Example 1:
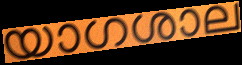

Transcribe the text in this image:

യാഗശാല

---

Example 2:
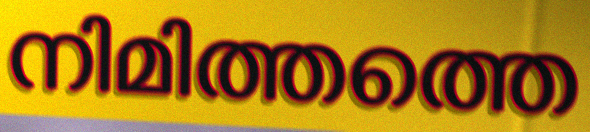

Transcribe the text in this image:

നിമിത്തത്തെ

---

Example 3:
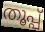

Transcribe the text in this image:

തൂപ്പ്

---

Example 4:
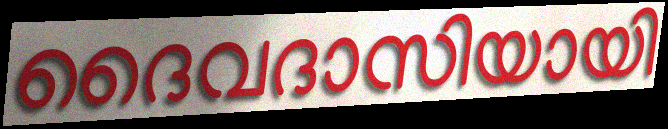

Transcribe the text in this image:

ദൈവദാസിയായി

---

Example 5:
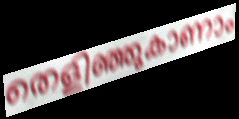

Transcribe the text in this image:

തെളിഞ്ഞുകാണാം